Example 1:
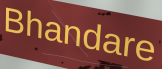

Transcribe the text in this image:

Bhandare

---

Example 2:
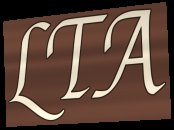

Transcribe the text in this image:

LTA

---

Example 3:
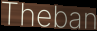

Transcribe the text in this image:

Theban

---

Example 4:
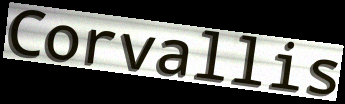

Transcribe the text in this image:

Corvallis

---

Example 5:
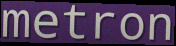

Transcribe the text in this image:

metron